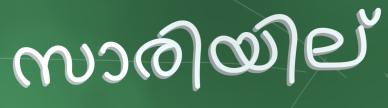
സാരിയില്